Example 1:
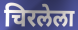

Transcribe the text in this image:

चिरलेला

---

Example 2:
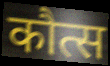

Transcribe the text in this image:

कौत्स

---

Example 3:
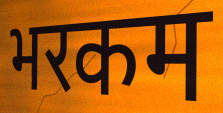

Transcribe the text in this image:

भरकम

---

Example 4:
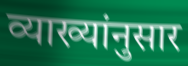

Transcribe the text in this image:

व्याख्यांनुसार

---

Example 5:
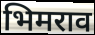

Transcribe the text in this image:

भिमराव